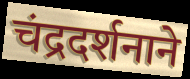
चंद्रदर्शनाने